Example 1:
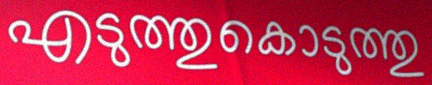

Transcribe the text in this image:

എടുത്തുകൊടുത്തു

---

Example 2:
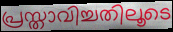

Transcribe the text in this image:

പ്രസ്താവിച്ചതിലൂടെ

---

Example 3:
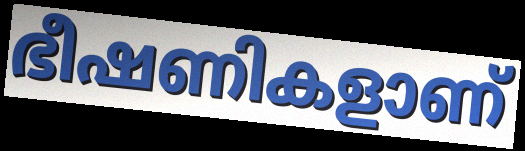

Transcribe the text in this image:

ഭീഷണികളാണ്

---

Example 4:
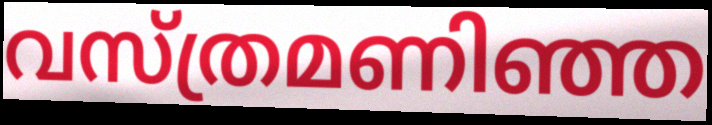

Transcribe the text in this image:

വസ്ത്രമണിഞ്ഞ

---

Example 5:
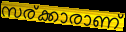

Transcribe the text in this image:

സര്ക്കാരാണ്